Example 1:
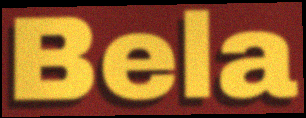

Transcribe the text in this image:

Bela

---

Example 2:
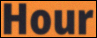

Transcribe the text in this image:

Hour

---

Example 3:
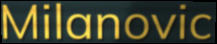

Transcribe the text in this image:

Milanovic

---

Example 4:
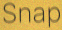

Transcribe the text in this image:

Snap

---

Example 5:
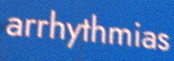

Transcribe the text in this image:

arrhythmias